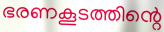
ഭരണകൂടത്തിന്റെ